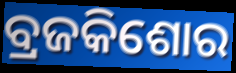
ବ୍ରଜକିଶୋର